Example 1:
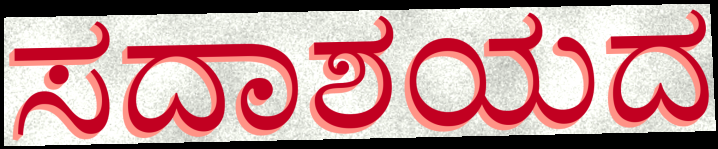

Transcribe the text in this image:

ಸದಾಶಯದ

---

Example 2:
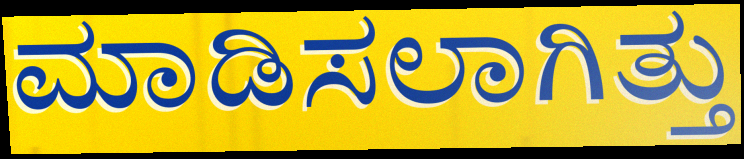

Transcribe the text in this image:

ಮಾಡಿಸಲಾಗಿತ್ತು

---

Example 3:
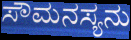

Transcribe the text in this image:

ಸೌಮನಸ್ಯನು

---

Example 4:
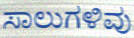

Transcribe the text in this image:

ಸಾಲುಗಳಿವು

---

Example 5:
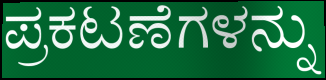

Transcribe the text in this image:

ಪ್ರಕಟಣೆಗಳನ್ನು